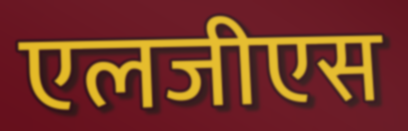
एलजीएस